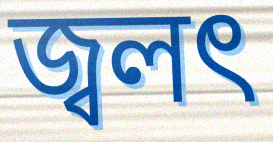
জ্বলৎ